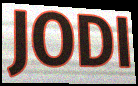
JODI